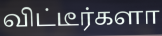
விட்டீர்களா